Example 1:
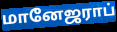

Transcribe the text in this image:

மானேஜராப்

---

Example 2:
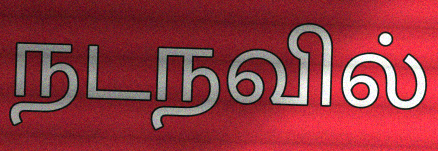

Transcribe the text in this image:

நடநவில்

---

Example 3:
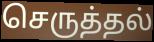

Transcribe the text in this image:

செருத்தல்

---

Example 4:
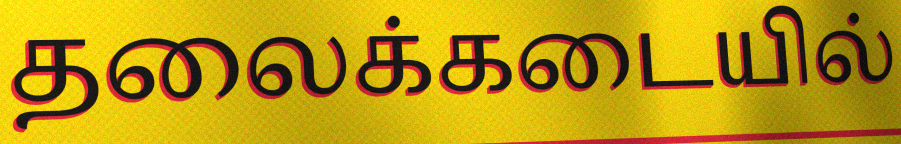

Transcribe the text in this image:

தலைக்கடையில்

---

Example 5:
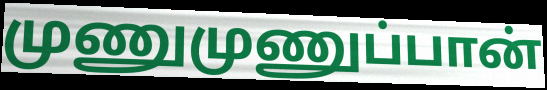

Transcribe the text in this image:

முணுமுணுப்பான்